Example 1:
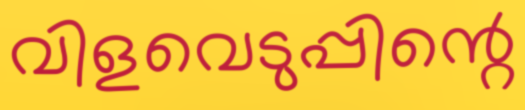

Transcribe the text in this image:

വിളവെടുപ്പിന്റെ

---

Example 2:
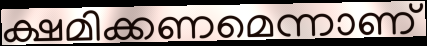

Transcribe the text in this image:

ക്ഷമിക്കണമെന്നാണ്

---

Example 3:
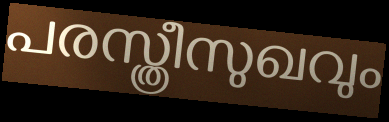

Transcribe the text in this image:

പരസ്ത്രീസുഖവും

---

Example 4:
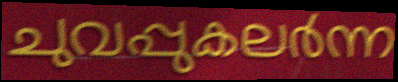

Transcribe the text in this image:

ചുവപ്പുകലർന്ന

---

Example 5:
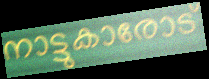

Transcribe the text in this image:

നാട്ടുകാരോട്